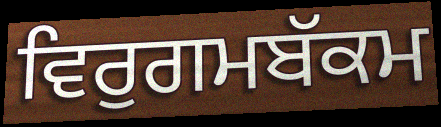
ਵਿਰੁਗਮਬੱਕਮ